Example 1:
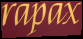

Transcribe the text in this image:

rapax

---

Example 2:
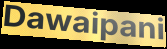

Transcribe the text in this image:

Dawaipani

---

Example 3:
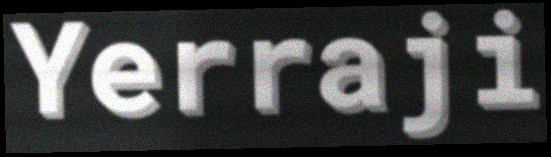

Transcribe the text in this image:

Yerraji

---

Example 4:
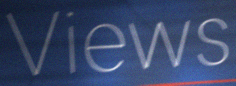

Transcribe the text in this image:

Views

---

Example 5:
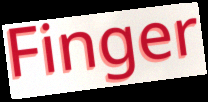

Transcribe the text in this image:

Finger